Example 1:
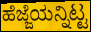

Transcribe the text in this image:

ಹೆಜ್ಜೆಯನ್ನಿಟ್ಟ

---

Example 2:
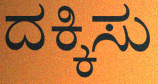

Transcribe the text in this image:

ದಕ್ಕಿಸು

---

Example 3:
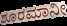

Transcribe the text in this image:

ಶೂರಮಾನೀ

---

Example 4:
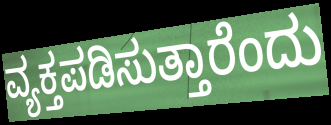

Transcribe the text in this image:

ವ್ಯಕ್ತಪಡಿಸುತ್ತಾರೆಂದು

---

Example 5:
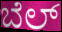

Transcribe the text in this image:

ಬೆಲ್